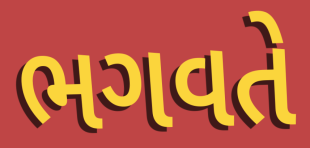
ભગવતે